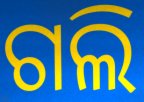
ଗଲି